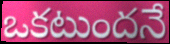
ఒకటుందనే